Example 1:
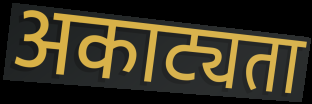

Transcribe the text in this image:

अकाट्यता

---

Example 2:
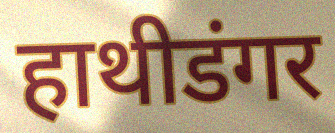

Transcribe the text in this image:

हाथीडंगर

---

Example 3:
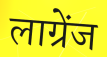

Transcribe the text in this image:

लाग्रेंज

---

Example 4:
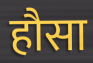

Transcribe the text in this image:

हौसा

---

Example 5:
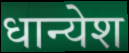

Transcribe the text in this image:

धान्येश